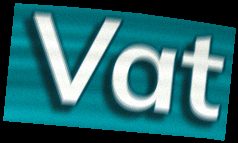
Vat